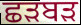
ਛੜਬੜ